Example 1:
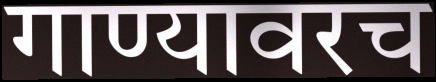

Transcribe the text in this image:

गाण्यावरच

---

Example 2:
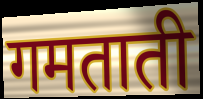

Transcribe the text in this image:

गमताती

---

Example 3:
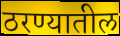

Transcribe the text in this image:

ठरण्यातील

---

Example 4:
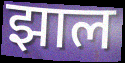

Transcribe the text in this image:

झाल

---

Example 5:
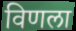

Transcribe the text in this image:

विणला